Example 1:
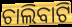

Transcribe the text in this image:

ଚାଲିବାଟି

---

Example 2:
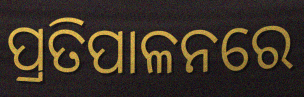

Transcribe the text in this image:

ପ୍ରତିପାଳନରେ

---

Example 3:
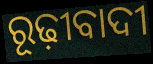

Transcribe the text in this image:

ରୂଢ଼ୀବାଦୀ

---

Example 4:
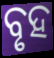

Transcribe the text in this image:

ବୃହ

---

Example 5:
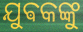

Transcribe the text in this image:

ଯୁଵକଙ୍କୁ